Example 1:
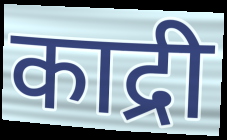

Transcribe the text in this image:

काद्री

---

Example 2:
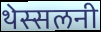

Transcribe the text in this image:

थेस्सलनी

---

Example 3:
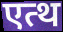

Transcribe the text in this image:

एत्थ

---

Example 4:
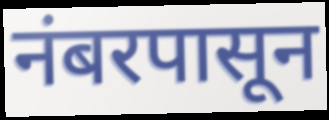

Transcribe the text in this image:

नंबरपासून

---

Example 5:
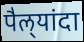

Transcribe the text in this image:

पैल्यांदा